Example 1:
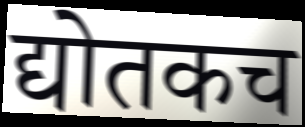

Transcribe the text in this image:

द्योतकच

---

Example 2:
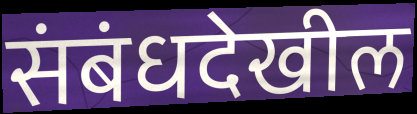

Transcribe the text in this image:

संबंधदेखील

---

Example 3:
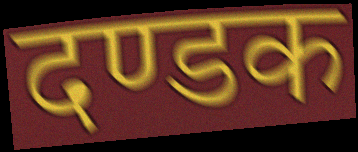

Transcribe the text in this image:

दण्डक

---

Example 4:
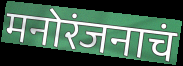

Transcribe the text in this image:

मनोरंजनाचं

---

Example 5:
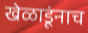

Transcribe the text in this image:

खेळाडूंनाच